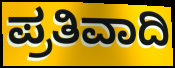
ಪ್ರತಿವಾದಿ